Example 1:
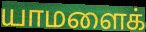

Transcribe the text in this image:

யாமளைக்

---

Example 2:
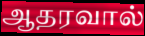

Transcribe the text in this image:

ஆதரவால்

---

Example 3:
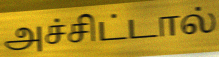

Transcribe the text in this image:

அச்சிட்டால்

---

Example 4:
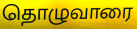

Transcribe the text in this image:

தொழுவாரை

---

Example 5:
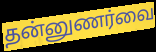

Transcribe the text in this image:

தன்னுணர்வை